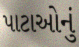
પાટાઓનું